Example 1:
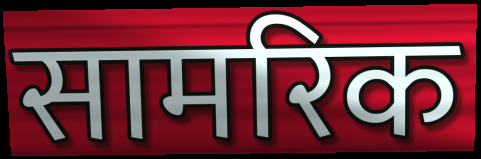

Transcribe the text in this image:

सामरिक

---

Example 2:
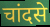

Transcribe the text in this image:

चांदसे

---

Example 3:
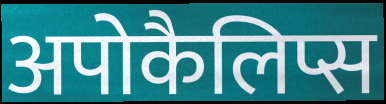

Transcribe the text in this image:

अपोकैलिप्स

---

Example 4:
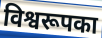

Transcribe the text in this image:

विश्वरूपका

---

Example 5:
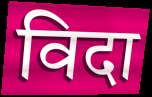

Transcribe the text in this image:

विदा